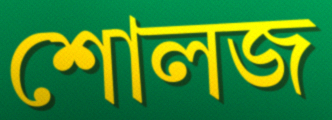
শোলজ